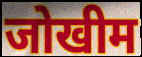
जोखीम